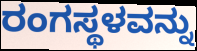
ರಂಗಸ್ಥಳವನ್ನು